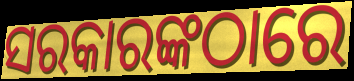
ସରକାରଙ୍କଠାରେ